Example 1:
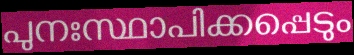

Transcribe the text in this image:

പുനഃസ്ഥാപിക്കപ്പെടും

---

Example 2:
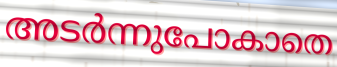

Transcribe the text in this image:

അടർന്നുപോകാതെ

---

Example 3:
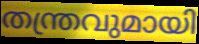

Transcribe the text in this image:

തന്ത്രവുമായി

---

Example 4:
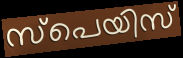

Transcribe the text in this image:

സ്പെയിസ്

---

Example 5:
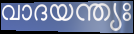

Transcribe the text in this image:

വാദയന്ത്യഃ